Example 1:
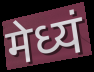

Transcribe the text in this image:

मेध्यं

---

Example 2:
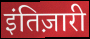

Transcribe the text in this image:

इंतिज़ारी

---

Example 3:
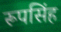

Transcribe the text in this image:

रूपसिंह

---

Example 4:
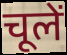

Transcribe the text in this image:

चूलें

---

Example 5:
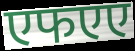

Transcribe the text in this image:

एफएए